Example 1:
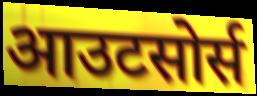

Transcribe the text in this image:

आउटसोर्स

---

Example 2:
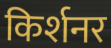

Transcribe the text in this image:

किर्शनर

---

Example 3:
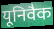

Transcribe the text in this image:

यूनिवैक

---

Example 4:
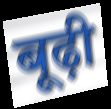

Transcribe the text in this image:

बूढ़ी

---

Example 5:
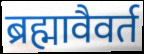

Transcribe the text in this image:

ब्रह्मावैवर्त